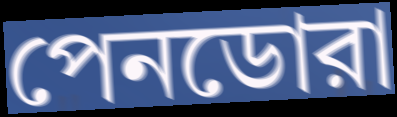
পেনডোরা